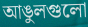
আঙুলগুলো